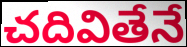
చదివితేనే